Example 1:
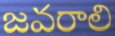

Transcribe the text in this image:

జవరాలి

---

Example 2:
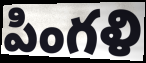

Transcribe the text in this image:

పింగళి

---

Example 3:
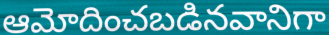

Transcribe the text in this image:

ఆమోదించబడినవానిగా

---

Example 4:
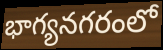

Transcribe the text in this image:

భాగ్యనగరంలో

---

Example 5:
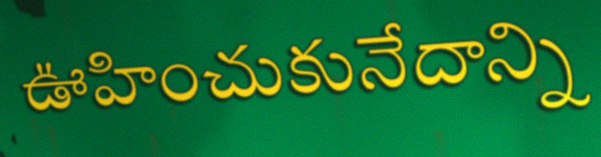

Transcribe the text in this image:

ఊహించుకునేదాన్ని